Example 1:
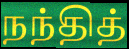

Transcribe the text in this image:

நந்தித்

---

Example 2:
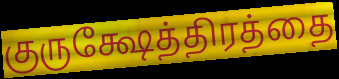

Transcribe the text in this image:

குருக்ஷேத்திரத்தை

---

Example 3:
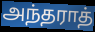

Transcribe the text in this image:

அந்தராத்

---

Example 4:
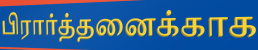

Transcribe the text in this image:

பிரார்த்தனைக்காக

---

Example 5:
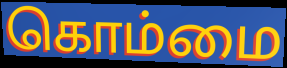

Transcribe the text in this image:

கொம்மை